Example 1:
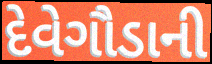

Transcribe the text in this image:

દેવેગૌડાની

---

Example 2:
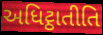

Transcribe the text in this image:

અધિટ્ઠાતીતિ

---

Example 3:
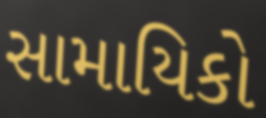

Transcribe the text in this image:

સામાયિકો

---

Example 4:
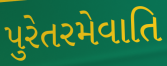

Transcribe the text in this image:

પુરેતરમેવાતિ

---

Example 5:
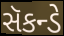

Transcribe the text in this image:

સૅકન્ડે